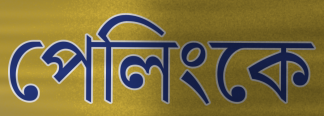
পেলিংকে